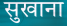
सुखाना